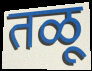
तळू